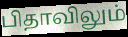
பிதாவிலும்